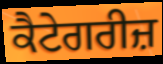
ਕੈਟੇਗਰੀਜ਼